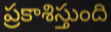
ప్రకాశిస్తుంది